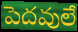
పెదవులే